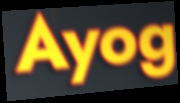
Ayog